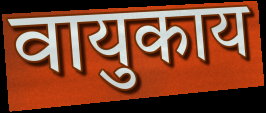
वायुकाय